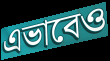
এভাবেও